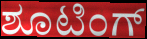
ಶೂಟಿಂಗ್